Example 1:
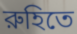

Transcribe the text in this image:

রুহিতে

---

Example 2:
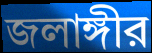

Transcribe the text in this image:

জলাঙ্গীর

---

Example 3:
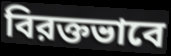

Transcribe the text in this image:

বিরক্তভাবে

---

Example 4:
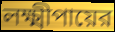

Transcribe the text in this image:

লক্ষ্মীপায়ের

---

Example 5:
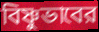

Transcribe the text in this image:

বিষ্ণুভাবের